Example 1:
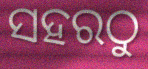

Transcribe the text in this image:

ସହରଠୁ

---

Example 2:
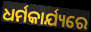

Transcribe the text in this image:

ଧର୍ମକାର୍ଯ୍ୟରେ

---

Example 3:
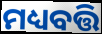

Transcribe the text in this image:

ମଧ୍ୟବତ୍ତି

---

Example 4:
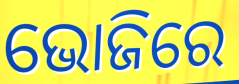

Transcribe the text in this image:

ଭୋଜିରେ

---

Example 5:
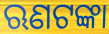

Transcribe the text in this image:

ଋଣଟଙ୍କା